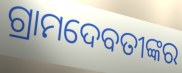
ଗ୍ରାମଦେବତୀଙ୍କର